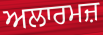
ਅਲਾਰਮਜ਼